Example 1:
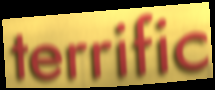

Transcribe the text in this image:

terrific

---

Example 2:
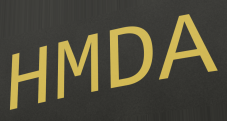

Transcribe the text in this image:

HMDA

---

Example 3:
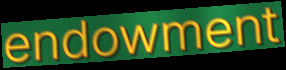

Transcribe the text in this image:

endowment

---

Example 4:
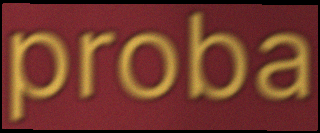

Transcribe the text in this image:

proba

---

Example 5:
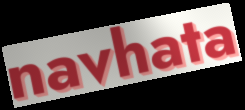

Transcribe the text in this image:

navhata